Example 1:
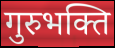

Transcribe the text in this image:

गुरुभक्ति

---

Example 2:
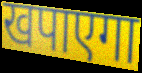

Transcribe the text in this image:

खपाएगा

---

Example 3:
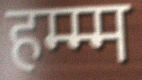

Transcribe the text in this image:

हम्म्म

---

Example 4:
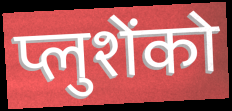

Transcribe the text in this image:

प्लुशेंको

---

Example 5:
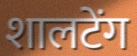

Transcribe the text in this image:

शालटेंग